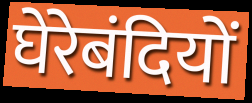
घेरेबंदियों